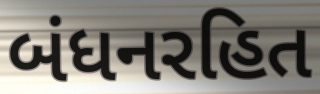
બંધનરહિત